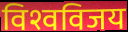
विश्वविजय